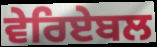
ਵੇਰਿਏਬਲ